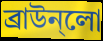
ব্রাউন্লো